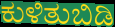
ಕುಳಿತುಬಿಡಿ